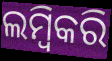
ଲମ୍ବିକରି